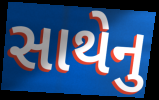
સાથેનુ